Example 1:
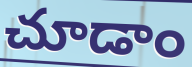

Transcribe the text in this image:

చూడాం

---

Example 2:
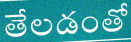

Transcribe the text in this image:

తేలడంతో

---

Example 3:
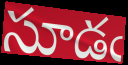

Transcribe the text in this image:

సూడఁ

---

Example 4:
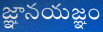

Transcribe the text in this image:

జ్ఞానయజ్ఞం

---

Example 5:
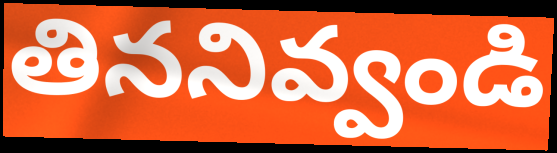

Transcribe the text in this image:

తిననివ్వండి